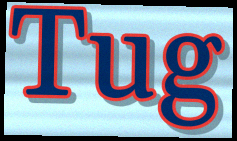
Tug